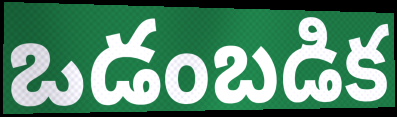
ఒడంబడిక